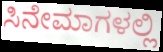
ಸಿನೇಮಾಗಳಲ್ಲಿ